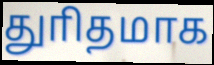
துரிதமாக